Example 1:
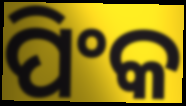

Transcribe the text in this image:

ପିଂକ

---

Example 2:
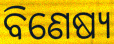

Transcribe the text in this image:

ବିଣେଷ୍ୟ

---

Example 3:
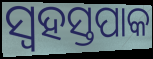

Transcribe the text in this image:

ସ୍ୱହସ୍ତପାକ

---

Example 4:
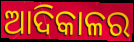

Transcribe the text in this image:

ଆଦିକାଳର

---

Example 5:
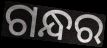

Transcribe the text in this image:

ଗନ୍ଧର